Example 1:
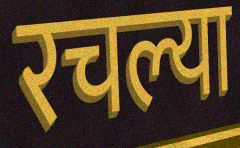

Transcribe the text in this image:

रचल्या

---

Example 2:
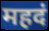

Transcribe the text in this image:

महदं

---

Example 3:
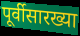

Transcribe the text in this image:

पूर्वीसारख्या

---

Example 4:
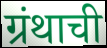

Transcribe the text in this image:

ग्रंथाची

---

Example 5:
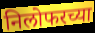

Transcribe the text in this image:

निलोफरच्या